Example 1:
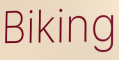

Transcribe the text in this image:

Biking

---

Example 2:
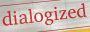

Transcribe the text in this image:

dialogized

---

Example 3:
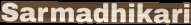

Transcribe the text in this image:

Sarmadhikari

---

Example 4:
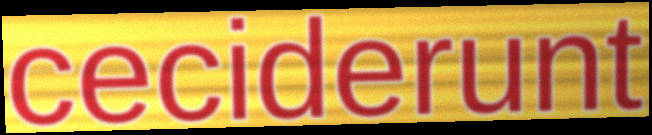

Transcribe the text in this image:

ceciderunt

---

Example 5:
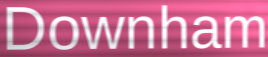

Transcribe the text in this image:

Downham